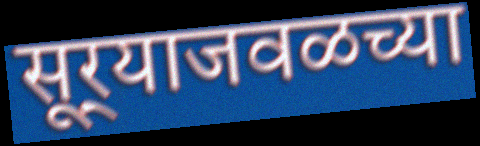
सूर्याजवळच्या